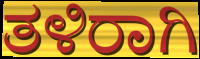
ತಳಿರಾಗಿ